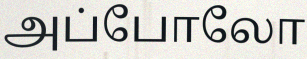
அப்போலோ